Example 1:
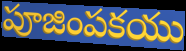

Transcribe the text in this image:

పూజింపకయు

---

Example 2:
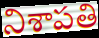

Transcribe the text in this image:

నిశాపతి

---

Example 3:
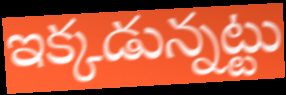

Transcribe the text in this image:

ఇక్కడున్నట్టు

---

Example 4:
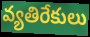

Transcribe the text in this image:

వ్యతిరేకులు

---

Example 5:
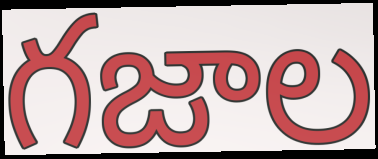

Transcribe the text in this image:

గజాల